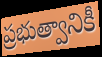
ప్రభుత్వానికీ